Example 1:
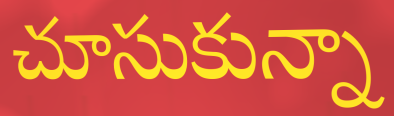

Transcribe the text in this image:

చూసుకున్నా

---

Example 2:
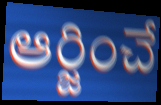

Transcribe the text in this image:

ఆర్జించే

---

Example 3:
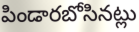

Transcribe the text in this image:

పిండారబోసినట్లు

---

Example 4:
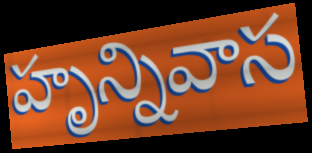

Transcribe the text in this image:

హృన్నివాస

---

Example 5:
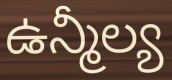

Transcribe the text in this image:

ఉన్మీల్య